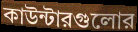
কাউন্টারগুলোর